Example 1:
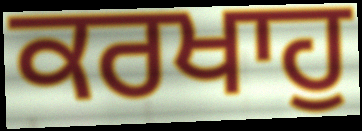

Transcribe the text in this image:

ਕਰਖਾਹੁ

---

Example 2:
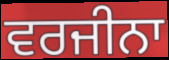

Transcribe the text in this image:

ਵਰਜੀਨਾ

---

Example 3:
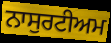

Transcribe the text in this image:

ਨਾਸੁਰਟੀਅਮ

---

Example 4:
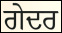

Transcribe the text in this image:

ਗੇਦਰ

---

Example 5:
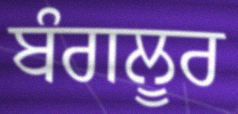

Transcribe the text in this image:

ਬੰਗਲੂਰ